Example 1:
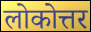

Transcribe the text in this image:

लोकोत्तर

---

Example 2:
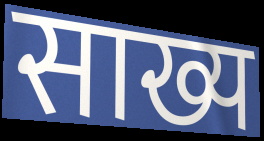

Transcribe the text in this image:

साख्य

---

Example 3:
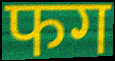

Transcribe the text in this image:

फग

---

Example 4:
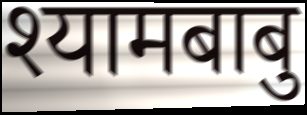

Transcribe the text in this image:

श्यामबाबु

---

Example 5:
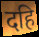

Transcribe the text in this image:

दहि